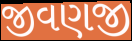
જીવણજી